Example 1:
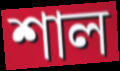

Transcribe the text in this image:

শাল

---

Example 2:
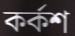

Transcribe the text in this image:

কৰ্কশ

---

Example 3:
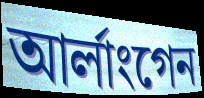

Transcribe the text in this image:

আৰ্লাংগেন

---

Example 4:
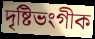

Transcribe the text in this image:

দৃষ্টিভংগীক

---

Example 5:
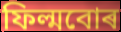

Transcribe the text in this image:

ফিল্মবোৰ